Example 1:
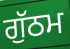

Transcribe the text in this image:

ਗੁੱਠਮ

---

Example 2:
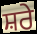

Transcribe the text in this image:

ਸ਼ਰੇ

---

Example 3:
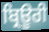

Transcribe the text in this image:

ਬ੍ਰਿਊਰੀ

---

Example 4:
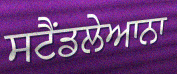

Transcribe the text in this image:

ਸਟੈਂਡਲੇਆਨਾ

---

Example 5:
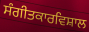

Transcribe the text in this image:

ਸੰਗੀਤਕਾਰਵਿਸ਼ਾਲ